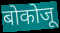
बोकोजू